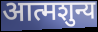
आत्मशुन्य